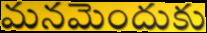
మనమెందుకు